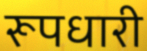
रूपधारी